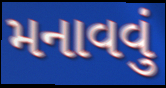
મનાવવું